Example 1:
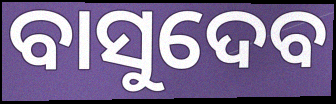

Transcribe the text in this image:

ବାସୁଦେବ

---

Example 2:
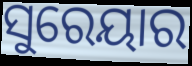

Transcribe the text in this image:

ସୁରେୟାର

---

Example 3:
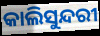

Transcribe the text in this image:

କାଲିସୁନ୍ଦରୀ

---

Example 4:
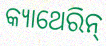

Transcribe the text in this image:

କ୍ୟାଥେରିନ୍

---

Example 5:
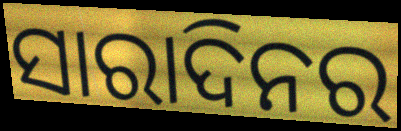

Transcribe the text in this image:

ସାରାଦିନର